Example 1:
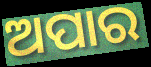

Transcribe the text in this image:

ଅପାର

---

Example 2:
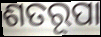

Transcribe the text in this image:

ଶତରୂପା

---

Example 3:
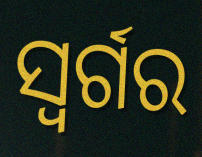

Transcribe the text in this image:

ସ୍ୱର୍ଗର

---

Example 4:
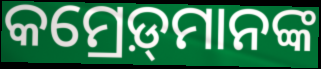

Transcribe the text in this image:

କମ୍ରେଡ଼୍‌ମାନଙ୍କ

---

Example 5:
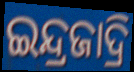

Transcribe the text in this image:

ଇନ୍ଦ୍ରଜାଦ୍ରି